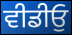
ਵੀਡੀਓੁ